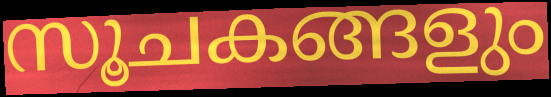
സൂചകങ്ങളും